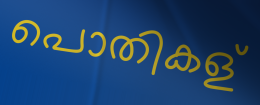
പൊതികള്